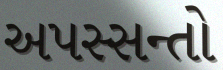
અપસ્સન્તો